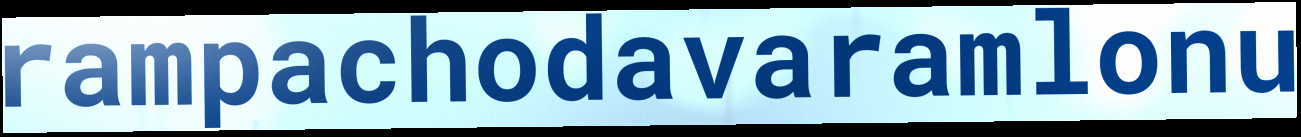
rampachodavaramlonu